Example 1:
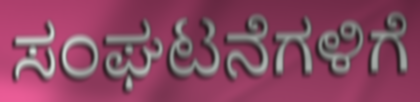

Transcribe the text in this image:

ಸಂಘಟನೆಗಳಿಗೆ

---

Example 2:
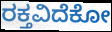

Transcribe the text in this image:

ರಕ್ತವಿದೆಕೋ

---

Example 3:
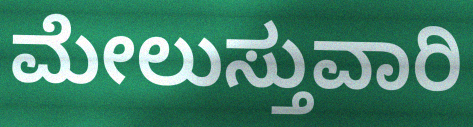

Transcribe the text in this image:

ಮೇಲುಸ್ತುವಾರಿ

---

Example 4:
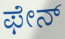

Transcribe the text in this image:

ಫೇನ್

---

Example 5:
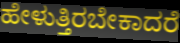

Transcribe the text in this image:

ಹೇಳುತ್ತಿರಬೇಕಾದರೆ